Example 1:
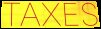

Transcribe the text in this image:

TAXES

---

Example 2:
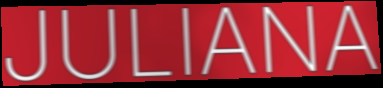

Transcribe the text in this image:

JULIANA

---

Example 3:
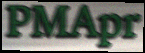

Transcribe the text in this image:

PMApr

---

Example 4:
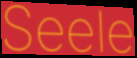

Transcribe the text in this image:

Seele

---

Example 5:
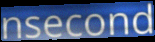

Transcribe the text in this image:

nsecond